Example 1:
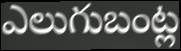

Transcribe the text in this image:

ఎలుగుబంట్ల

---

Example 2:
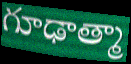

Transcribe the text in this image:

గూఢాత్మా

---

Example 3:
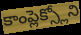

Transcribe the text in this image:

కాంప్లెక్స్లోని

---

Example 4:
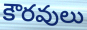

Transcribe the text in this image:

కౌరవులు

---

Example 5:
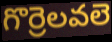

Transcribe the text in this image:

గొర్రెలవలె